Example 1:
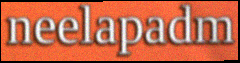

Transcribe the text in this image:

neelapadm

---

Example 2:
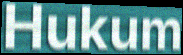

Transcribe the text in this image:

Hukum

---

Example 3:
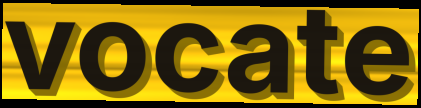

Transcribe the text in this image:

vocate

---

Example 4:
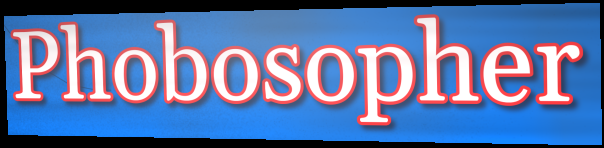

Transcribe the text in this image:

Phobosopher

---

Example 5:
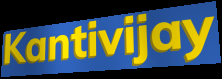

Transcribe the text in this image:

Kantivijay